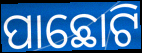
ପାଛୋଟି